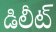
డిలీట్